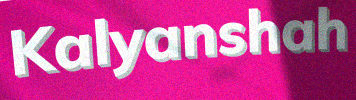
Kalyanshah